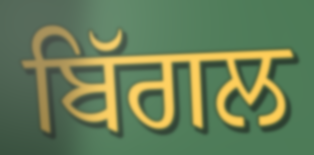
ਬਿੱਗਲ